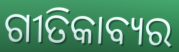
ଗୀତିକାବ୍ୟର